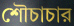
শৌচাচার